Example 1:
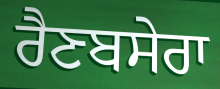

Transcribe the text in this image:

ਰੈਣਬਸੇਰਾ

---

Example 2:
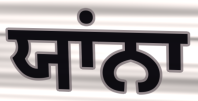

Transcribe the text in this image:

ਯਾਂਨਾ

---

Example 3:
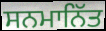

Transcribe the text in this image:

ਸਨਮਾਨਿੱਤ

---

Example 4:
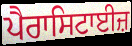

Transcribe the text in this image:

ਪੈਰਾਸਿਟਾਈਜ਼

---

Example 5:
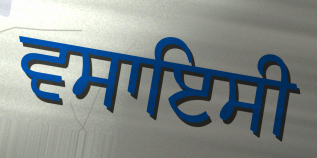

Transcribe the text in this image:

ਵਸਾਇਸੀ